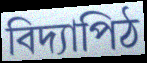
বিদ্যাপিঠ